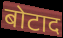
बोटाद